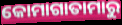
କୋମାଗାତାମାରୁ